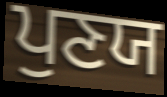
ਪੁਣਯ